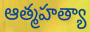
ఆత్మహత్యా